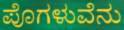
ಪೊಗಳುವೆನು